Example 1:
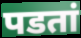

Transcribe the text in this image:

पडतां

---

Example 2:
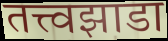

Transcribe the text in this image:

तत्त्वझाडा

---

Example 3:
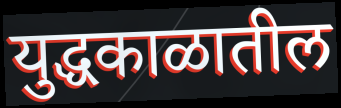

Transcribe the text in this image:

युद्धकाळातील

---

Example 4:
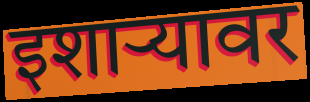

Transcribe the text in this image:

इशार्‍यावर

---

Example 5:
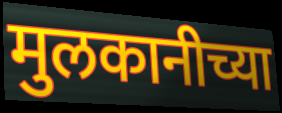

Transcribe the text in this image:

मुलकानीच्या